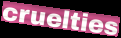
cruelties